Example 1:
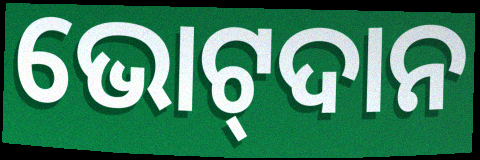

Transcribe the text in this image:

ଭୋଟ୍‌ଦାନ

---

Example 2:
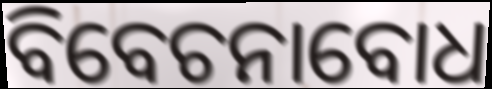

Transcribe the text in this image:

ବିବେଚନାବୋଧ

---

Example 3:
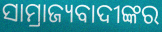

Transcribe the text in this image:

ସାମ୍ରାଜ୍ୟବାଦୀଙ୍କର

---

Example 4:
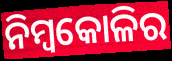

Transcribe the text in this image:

ନିମ୍ବକୋଳିର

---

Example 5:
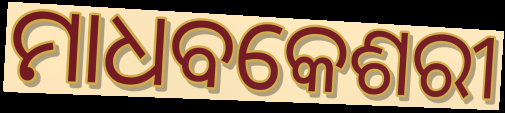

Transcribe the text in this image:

ମାଧବକେଶରୀ